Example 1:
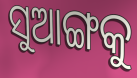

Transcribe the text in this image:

ସୁଆଙ୍ଗକୁ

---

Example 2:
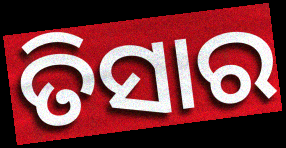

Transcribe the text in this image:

ତିସାର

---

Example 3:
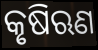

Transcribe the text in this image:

କୃଷିଋଣ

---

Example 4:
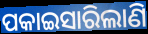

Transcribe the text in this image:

ପକାଇସାରିଲାଣି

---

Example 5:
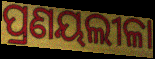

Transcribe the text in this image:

ପ୍ରଣୟଲୀଳା